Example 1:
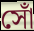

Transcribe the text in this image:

সোঁ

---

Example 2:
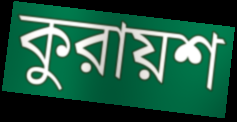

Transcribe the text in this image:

কুরায়শ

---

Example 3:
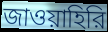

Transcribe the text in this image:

জাওয়াহিরি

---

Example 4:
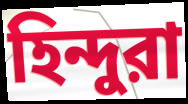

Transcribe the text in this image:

হিন্দুরা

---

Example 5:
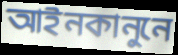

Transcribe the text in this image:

আইনকানুনে